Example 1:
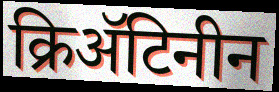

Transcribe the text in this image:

क्रिॲटिनीन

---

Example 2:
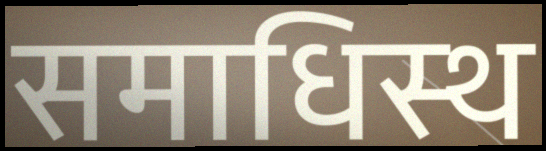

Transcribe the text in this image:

समाधिस्थ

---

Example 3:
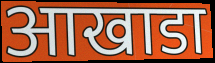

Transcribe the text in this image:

आखाडा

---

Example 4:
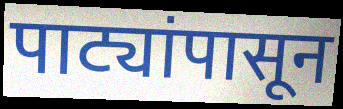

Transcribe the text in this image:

पाट्यांपासून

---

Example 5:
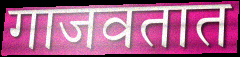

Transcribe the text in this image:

गाजवतात